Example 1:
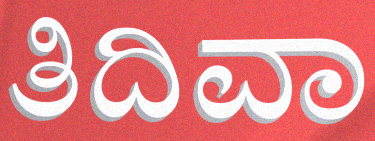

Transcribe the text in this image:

ತಿದಿವಾ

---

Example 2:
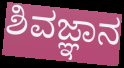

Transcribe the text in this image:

ಶಿವಜ್ಞಾನ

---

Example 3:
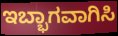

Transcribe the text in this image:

ಇಬ್ಭಾಗವಾಗಿಸಿ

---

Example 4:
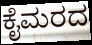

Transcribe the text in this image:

ಕೈಮರದ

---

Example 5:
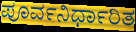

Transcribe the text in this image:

ಪೂರ್ವನಿರ್ಧಾರಿತ